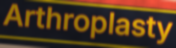
Arthroplasty